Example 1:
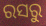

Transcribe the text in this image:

ରସରୁ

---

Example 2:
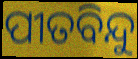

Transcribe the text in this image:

ପୀତବିନ୍ଦୁ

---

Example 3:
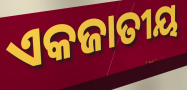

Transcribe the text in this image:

ଏକଜାତୀୟ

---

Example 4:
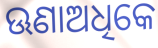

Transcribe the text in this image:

ଊଣାଅଧିକେ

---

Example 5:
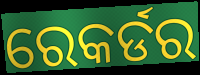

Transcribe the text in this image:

ରେକର୍ଡର